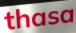
thasa